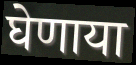
घेणाया